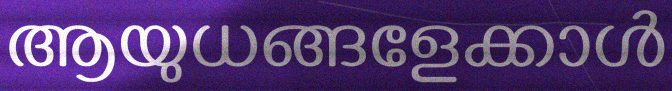
ആയുധങ്ങളേക്കാൾ